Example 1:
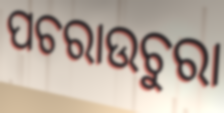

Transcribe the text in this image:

ପଚରାଉଚୁରା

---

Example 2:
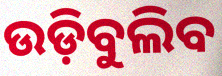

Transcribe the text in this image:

ଉଡ଼ିବୁଲିବ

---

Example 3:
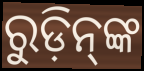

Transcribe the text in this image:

ରୁଡ଼ିନ୍‌ଙ୍କ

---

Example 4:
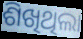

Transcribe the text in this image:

ଶିଖିଥିଲା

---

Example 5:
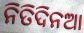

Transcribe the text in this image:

ନିତିଦିନଆ